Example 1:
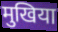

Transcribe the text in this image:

मुखिया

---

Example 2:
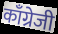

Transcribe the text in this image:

काँग्रेजी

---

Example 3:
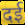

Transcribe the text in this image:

दई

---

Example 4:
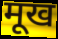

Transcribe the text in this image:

मूख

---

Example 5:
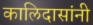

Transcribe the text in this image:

कालिदासांनी